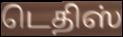
டெதிஸ்